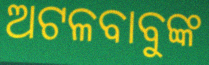
ଅଟଳବାବୁଙ୍କ